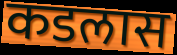
कडलास